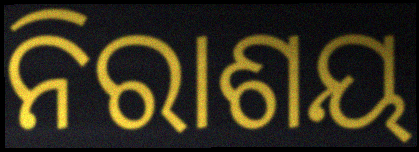
ନିରାଶୟ